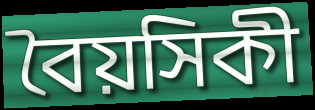
বৈয়সিকী